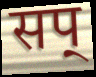
सप्